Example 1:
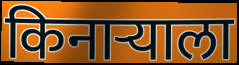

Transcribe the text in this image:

किनाऱ्याला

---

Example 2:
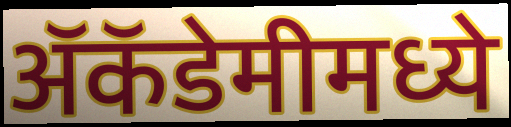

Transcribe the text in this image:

ॲकॅडेमीमध्ये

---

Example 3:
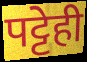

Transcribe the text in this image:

पट्टेही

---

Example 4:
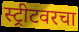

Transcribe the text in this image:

स्ट्रीटवरचा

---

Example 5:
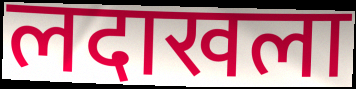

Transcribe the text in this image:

लदाखला